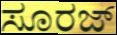
ಸೂರಜ್